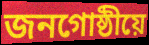
জনগোষ্ঠীয়ে